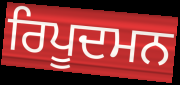
ਰਿਪੂਦਮਨ